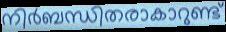
നിർബന്ധിതരാകാറുണ്ട്